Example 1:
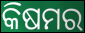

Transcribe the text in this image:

କିଷମର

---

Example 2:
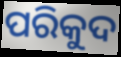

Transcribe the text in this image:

ପରିକୁଦ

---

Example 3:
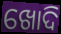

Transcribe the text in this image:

ଖୋଦି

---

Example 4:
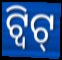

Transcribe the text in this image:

ଟ୍ୱିଟ୍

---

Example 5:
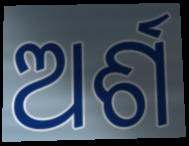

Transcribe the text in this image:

ଅର୍ଶ